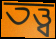
তত্ত্ব